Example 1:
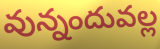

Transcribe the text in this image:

వున్నందువల్ల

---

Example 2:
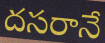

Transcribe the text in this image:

దసరానే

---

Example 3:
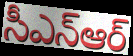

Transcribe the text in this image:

సీఎన్ఆర్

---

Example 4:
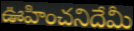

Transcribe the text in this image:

ఊహించనిదేమీ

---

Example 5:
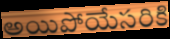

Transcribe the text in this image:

అయిపోయేసరికి